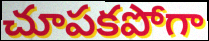
చూపకపోగా